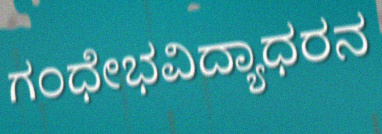
ಗಂಧೇಭವಿದ್ಯಾಧರನ